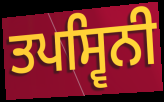
ਤਪਸ੍ਵਿਨੀ